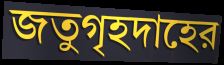
জতুগৃহদাহের